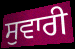
ਸੁਵਾਰੀ